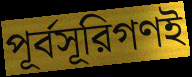
পূর্বসূরিগণই